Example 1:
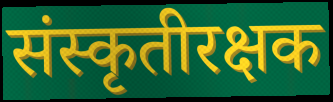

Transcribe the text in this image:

संस्कृतीरक्षक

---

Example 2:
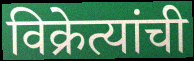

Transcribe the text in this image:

विक्रेत्यांची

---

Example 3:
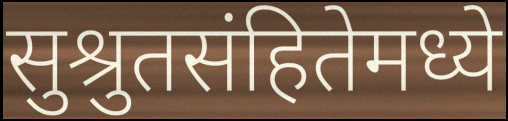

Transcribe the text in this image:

सुश्रुतसंहितेमध्ये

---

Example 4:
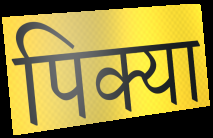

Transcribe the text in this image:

पिक्या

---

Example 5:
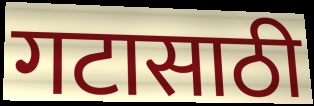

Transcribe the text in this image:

गटासाठी